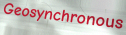
Geosynchronous